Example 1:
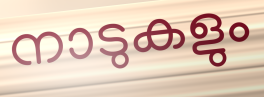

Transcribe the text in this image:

നാടുകളും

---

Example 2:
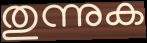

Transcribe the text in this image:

തുന്നുക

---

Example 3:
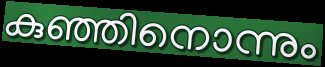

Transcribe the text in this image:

കുഞ്ഞിനൊന്നും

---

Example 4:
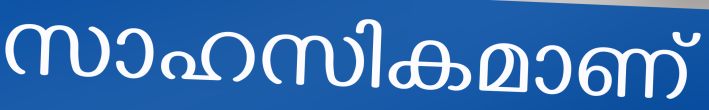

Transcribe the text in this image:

സാഹസികമാണ്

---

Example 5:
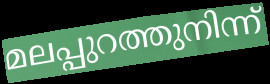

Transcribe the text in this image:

മലപ്പുറത്തുനിന്ന്